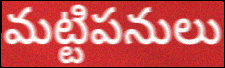
మట్టిపనులు